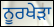
ਨੂਰਖੇੜਾ